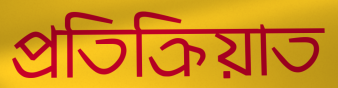
প্ৰতিক্ৰিয়াত